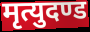
मृत्युदण्ड